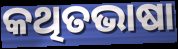
କଥିତଭାଷା